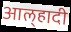
आल्हादी